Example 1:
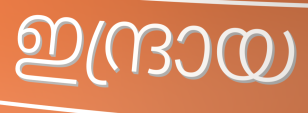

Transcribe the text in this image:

ഇന്ദ്രായ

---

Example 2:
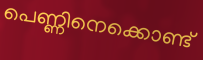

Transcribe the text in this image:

പെണ്ണിനെക്കൊണ്ട്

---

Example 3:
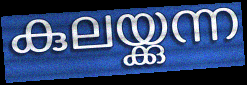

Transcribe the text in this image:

കുലയ്ക്കുന്ന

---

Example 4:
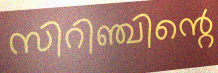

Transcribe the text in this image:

സിറിഞ്ചിന്റെ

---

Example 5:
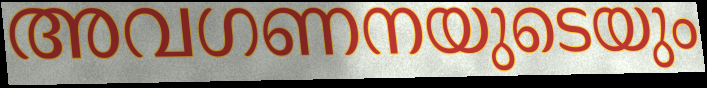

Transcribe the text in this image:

അവഗണനയുടെയും